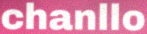
chanllo